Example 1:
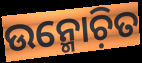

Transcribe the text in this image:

ଉନ୍ମୋଚ଼ିତ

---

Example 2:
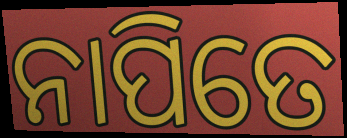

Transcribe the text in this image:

ନାପିତେ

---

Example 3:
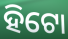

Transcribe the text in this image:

ହିଟୋ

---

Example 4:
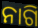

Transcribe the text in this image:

ନାଗି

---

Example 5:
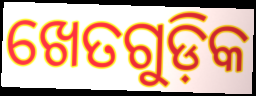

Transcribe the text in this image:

ଖେତଗୁଡ଼ିକ